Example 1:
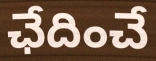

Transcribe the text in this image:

ఛేదించే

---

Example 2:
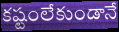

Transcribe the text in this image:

కష్టంలేకుండానే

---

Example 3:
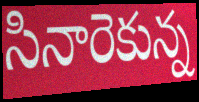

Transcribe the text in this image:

సినారెకున్న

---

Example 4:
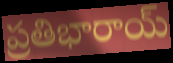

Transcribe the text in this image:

ప్రతిభారాయ్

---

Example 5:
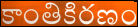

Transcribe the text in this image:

కాంతికిరణం